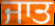
ਜਾਤ